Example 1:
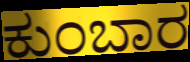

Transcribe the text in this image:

ಕುಂಬಾರ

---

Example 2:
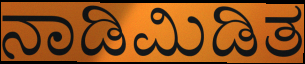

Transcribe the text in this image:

ನಾಡಿಮಿಡಿತ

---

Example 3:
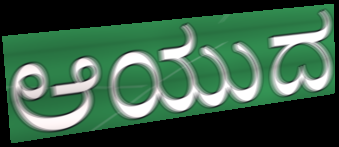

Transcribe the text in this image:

ಆಯುದ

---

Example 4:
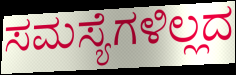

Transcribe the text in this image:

ಸಮಸ್ಯೆಗಳಿಲ್ಲದ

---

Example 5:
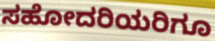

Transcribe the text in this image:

ಸಹೋದರಿಯರಿಗೂ